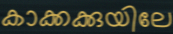
കാക്കക്കുയിലേ